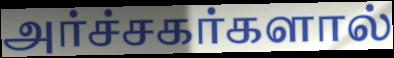
அர்ச்சகர்களால்